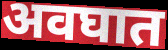
अवघात